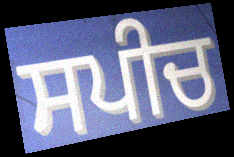
ਸਪੀਚ